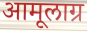
आमूलाग्र